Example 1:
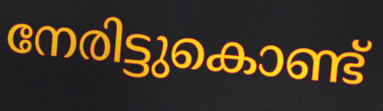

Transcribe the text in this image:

നേരിട്ടുകൊണ്ട്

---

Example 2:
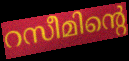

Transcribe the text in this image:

റസീമിന്റെ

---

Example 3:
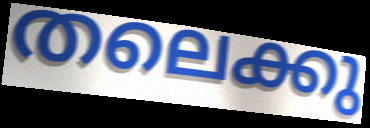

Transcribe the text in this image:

തലെക്കു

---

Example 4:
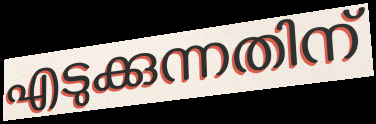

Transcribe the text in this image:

എടുക്കുന്നതിന്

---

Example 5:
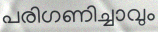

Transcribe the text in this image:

പരിഗണിച്ചാവും